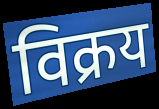
विक्रय